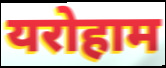
यरोहाम